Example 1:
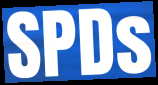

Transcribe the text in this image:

SPDs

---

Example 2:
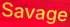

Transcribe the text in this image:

Savage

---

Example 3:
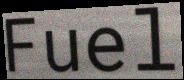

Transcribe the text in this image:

Fuel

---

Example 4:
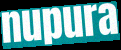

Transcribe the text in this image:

nupura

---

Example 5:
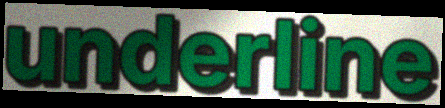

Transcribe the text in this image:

underline